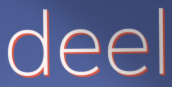
deel